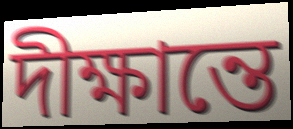
দীক্ষান্তে